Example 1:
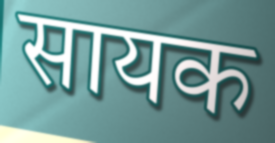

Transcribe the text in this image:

सायक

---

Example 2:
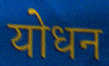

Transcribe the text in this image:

योधन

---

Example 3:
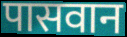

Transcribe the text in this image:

पासवान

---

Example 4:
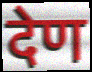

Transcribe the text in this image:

देण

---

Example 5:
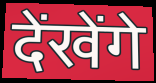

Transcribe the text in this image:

देंखेंगे